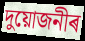
দুয়োজনীৰ